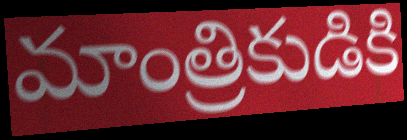
మాంత్రికుడికి